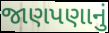
જાણપણાનું